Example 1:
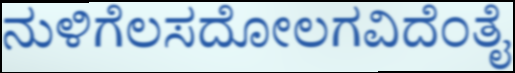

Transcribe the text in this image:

ನುಳಿಗೆಲಸದೋಲಗವಿದೆಂತೈ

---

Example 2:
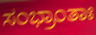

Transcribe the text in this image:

ಸಂಭ್ರಾಂತಾಃ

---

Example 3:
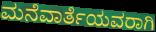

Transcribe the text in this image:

ಮನೆವಾರ್ತೆಯವರಾಗಿ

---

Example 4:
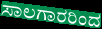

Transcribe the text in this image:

ಸಾಲಗಾರರಿಂದ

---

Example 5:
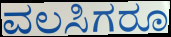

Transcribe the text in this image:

ವಲಸಿಗರೂ